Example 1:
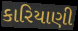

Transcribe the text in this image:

કારિયાણી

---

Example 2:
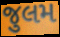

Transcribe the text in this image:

જુલમ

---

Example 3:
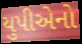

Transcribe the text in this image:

યુપીએનો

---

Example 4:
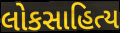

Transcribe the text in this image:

લોકસાહિત્ય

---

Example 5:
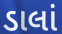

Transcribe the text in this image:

ડાલાં